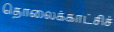
தொலைக்காட்சிச்